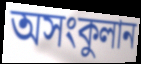
অসংকুলান